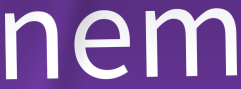
nem